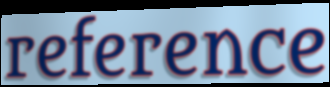
reference